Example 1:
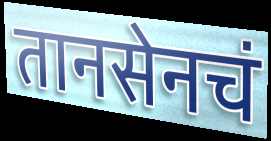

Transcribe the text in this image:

तानसेनचं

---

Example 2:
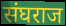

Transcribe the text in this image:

संघराज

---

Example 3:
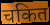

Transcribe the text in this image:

चकित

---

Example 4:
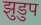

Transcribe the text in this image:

झुडुप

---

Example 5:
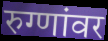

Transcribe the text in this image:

रुग्णांवर